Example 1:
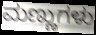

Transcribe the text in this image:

ಮಣ್ಣುಗಳು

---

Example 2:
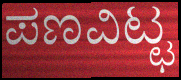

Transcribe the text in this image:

ಪಣವಿಟ್ಟ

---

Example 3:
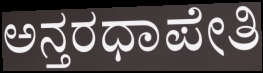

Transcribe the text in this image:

ಅನ್ತರಧಾಪೇತಿ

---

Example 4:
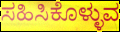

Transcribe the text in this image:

ಸಹಿಸಿಕೊಳ್ಳುವ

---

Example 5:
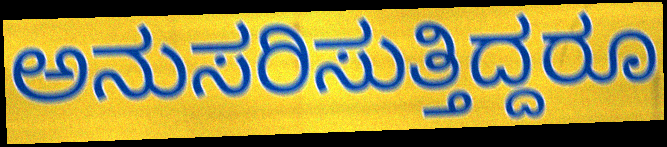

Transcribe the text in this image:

ಅನುಸರಿಸುತ್ತಿದ್ದರೂ